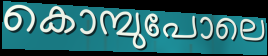
കൊമ്പുപോലെ